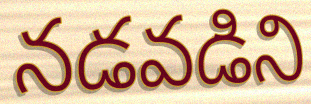
నడవడిని